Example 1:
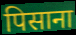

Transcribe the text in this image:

पिसाना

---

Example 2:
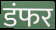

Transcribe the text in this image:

डंफर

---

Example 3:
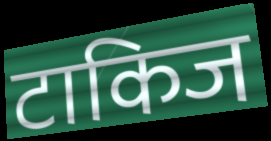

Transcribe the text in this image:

टाकिज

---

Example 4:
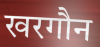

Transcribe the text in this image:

खरगौन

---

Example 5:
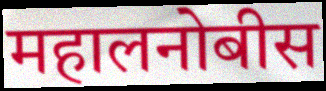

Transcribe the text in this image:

महालनोबीस